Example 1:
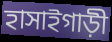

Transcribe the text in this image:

হাসাইগাড়ী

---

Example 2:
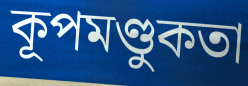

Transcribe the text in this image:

কূপমণ্ডুকতা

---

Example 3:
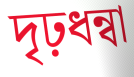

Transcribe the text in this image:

দৃঢ়ধন্বা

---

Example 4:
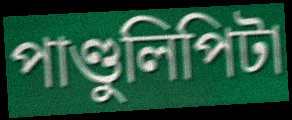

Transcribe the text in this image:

পাণ্ডুলিপিটা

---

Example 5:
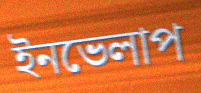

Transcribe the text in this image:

ইনভেলাপ